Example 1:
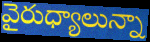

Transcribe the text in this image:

వైరుధ్యాలున్నా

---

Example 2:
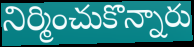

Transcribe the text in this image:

నిర్మించుకొన్నారు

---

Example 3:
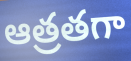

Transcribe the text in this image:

ఆత్రతగా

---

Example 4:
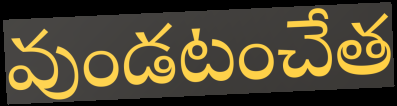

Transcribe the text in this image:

వుండటంచేత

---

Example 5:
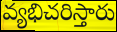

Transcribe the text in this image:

వ్యభిచరిస్తారు